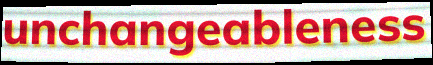
unchangeableness